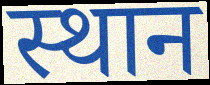
स्थान